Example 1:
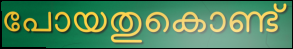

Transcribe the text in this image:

പോയതുകൊണ്ട്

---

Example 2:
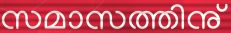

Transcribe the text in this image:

സമാസത്തിനു്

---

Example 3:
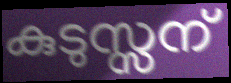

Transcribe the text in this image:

കുടുസ്സന്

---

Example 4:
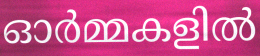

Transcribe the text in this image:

ഓർമ്മകളിൽ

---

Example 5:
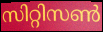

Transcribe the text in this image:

സിറ്റിസൺ